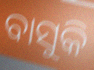
ବାସୁକି